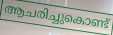
ആചരിച്ചുകൊണ്ട്